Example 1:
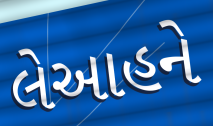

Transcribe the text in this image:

લેઆહને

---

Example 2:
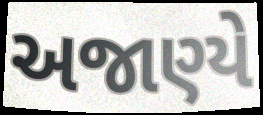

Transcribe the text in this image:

અજાણ્યે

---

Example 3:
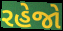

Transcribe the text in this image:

રહેજો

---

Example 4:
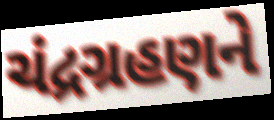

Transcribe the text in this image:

ચંદ્રગ્રહણને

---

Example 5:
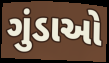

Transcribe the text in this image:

ગુંડાઓ